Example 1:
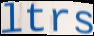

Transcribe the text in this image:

ltrs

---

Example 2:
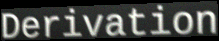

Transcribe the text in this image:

Derivation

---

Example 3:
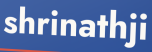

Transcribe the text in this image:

shrinathji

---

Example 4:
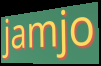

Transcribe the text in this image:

jamjo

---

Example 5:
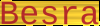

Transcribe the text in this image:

Besra